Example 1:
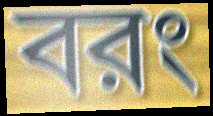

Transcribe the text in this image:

বরং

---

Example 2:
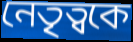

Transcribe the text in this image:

নেতৃত্বকে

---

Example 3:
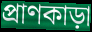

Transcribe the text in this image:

প্রাণকাড়া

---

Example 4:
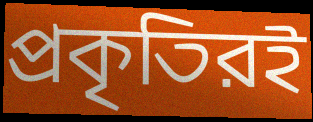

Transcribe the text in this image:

প্রকৃতিরই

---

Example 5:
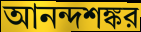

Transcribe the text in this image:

আনন্দশঙ্কর